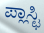
ಪ್ಲಾಸ್ಟಿ